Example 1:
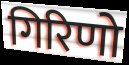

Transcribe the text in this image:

गिरिणो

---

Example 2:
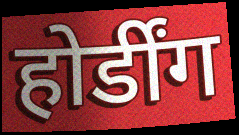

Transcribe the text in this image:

होर्डींग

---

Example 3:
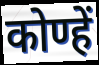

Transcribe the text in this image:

कोण्हें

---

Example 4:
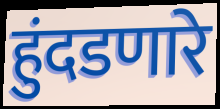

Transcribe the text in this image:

हुंदडणारे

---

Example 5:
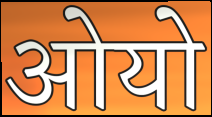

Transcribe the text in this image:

ओयो